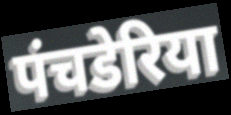
पंचडेरिया